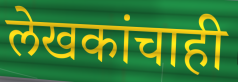
लेखकांचाही